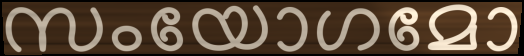
സംയോഗമോ